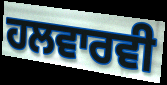
ਹਲਵਾਰਵੀ